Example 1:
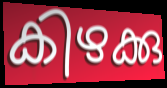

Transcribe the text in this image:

കിഴക്കു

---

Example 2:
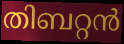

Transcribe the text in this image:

തിബറ്റൻ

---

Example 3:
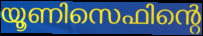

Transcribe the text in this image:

യൂണിസെഫിന്റെ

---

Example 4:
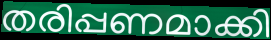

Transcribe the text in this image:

തരിപ്പണമാക്കി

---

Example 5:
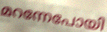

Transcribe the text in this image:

മറന്നേപോയി